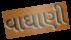
વાઘાણી